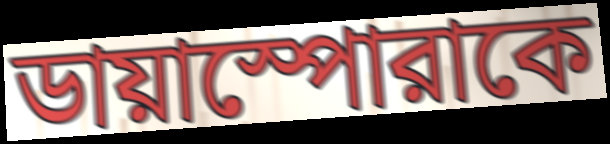
ডায়াস্পোরাকে